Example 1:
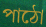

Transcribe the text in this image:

পাঠো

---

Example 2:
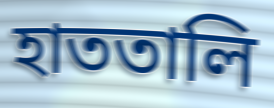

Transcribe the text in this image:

হাততালি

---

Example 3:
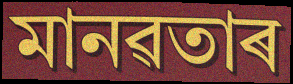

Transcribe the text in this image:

মানৱতাৰ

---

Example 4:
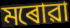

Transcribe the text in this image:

মৰোৱা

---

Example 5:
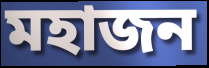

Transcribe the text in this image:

মহাজন